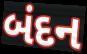
બંદન